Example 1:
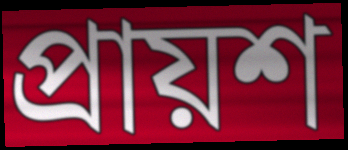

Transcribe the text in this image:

প্রায়শ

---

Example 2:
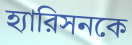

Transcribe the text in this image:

হ্যারিসনকে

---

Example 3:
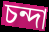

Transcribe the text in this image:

চন্দা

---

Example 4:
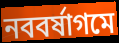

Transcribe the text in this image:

নববর্ষাগমে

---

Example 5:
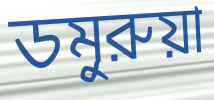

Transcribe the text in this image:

ডমুরুয়া